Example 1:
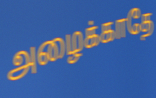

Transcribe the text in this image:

அழைக்காதே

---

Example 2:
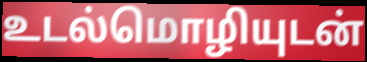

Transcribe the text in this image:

உடல்மொழியுடன்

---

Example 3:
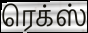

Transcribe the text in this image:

ரெக்ஸ்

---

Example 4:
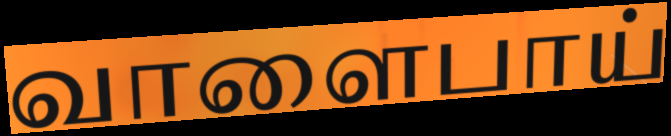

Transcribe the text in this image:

வாளைபாய்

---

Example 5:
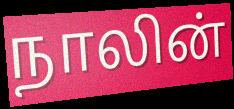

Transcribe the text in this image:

நாலின்